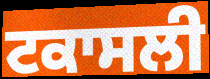
ਟਕਾਸਲੀ